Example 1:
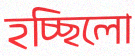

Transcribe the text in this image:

হচ্ছিলো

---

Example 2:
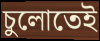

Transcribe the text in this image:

চুলোতেই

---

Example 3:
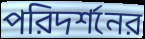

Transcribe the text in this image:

পরিদর্শনের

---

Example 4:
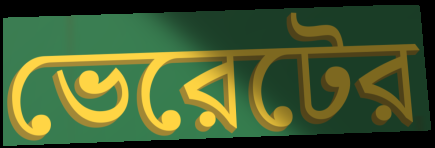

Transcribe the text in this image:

ভেরেটের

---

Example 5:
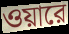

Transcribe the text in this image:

ওয়ারে